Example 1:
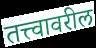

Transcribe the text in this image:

तत्त्वावरील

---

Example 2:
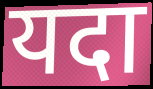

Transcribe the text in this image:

यदा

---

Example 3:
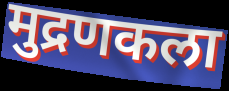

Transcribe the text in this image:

मुद्रणकला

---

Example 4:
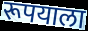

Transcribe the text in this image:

रूपयाला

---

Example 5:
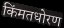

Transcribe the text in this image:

किंमतधोरण